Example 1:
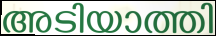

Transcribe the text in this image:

അടിയാത്തി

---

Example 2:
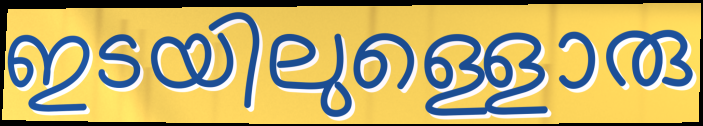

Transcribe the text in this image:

ഇടയിലുള്ളൊരു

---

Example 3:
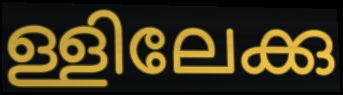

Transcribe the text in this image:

ള്ളിലേക്കു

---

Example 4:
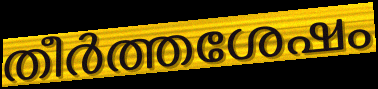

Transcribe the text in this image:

തീർത്തശേഷം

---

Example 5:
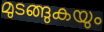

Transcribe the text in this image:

മുടങ്ങുകയും